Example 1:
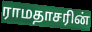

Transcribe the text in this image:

ராமதாசரின்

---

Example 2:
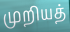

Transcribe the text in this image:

முறியத்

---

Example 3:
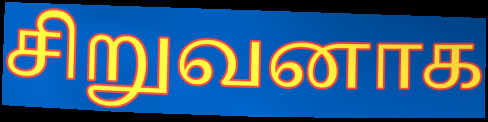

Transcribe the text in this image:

சிறுவனாக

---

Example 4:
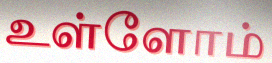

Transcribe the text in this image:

உள்ளோம்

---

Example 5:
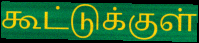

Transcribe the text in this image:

கூட்டுக்குள்